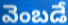
వెంబడే